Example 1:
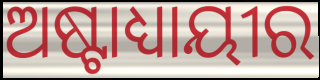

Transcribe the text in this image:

ଅଷ୍ଟାଧ୍ଯାୟୀର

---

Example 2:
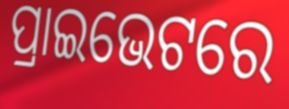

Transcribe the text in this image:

ପ୍ରାଇଭେଟରେ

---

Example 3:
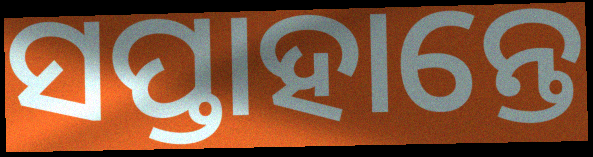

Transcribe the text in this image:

ସପ୍ତାହାନ୍ତେ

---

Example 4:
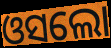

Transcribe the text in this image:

ଓସଲୋ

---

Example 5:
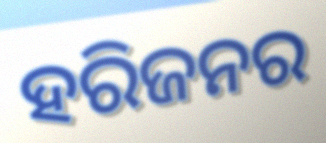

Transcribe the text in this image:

ହରିଜନର